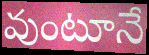
వుంటూనే